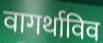
वागर्थाविव